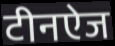
टीनऐज